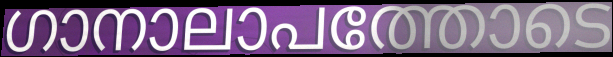
ഗാനാലാപത്തോടെ